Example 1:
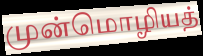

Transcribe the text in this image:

முன்மொழியத்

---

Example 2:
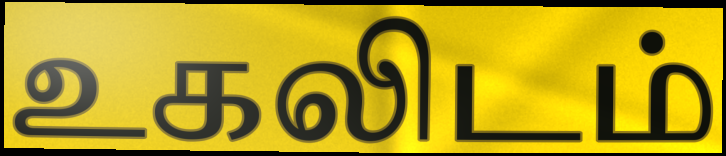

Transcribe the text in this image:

உகலிடம்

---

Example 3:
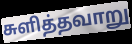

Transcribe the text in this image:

சுளித்தவாறு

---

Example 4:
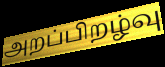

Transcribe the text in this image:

அறப்பிறழ்வு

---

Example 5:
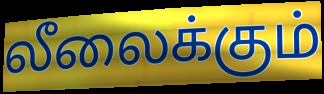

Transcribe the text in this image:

லீலைக்கும்